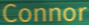
Connor